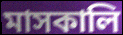
মাসকালি